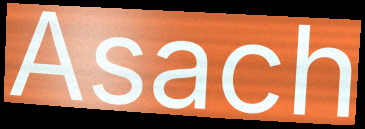
Asach